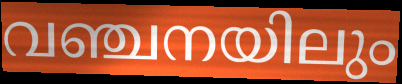
വഞ്ചനയിലും